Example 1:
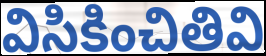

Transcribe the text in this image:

విసికించితివి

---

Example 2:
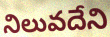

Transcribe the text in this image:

నిలువదేని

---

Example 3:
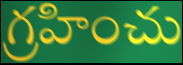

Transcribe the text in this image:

గ్రహించు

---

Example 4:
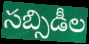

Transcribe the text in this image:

సబ్సిడీల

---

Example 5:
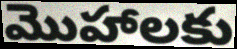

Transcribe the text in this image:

మొహాలకు